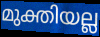
മുക്തിയല്ല